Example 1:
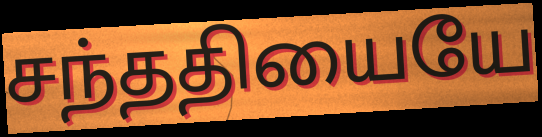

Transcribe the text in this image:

சந்ததியையே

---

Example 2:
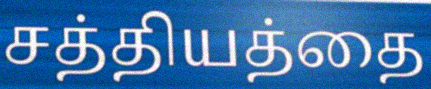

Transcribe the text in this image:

சத்தியத்தை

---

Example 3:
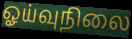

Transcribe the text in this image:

ஓய்வுநிலை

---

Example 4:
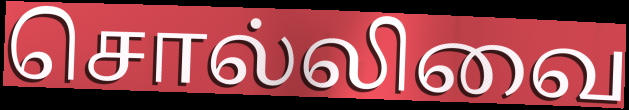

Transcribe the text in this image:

சொல்லிவை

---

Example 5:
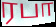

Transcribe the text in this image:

ரபா